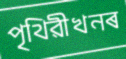
পৃথিৱীখনৰ